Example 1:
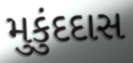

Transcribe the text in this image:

મુકુંદદાસ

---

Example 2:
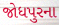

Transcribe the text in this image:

જોધપુરના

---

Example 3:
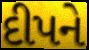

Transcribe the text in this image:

દીપને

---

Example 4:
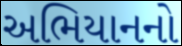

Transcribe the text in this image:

અભિયાનનો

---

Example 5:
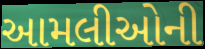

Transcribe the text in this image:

આમલીઓની